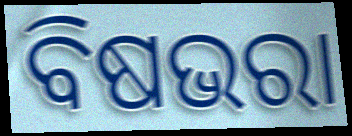
ବିଷଭରା